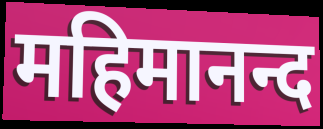
महिमानन्द